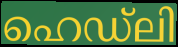
ഹെഡ്ലി